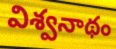
విశ్వనాథం